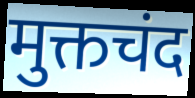
मुक्तचंद